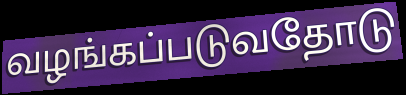
வழங்கப்படுவதோடு